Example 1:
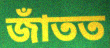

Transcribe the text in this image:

জাঁতত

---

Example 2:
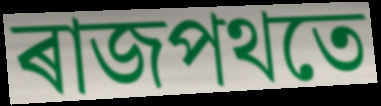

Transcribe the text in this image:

ৰাজপথতে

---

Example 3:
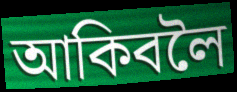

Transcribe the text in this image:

আকিবলৈ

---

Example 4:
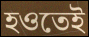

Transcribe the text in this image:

হওতেই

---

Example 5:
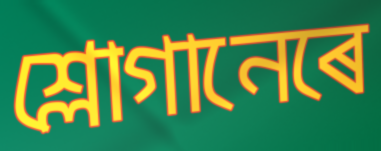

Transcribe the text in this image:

শ্লোগানেৰে